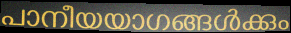
പാനീയയാഗങ്ങൾക്കും